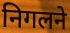
निगलने